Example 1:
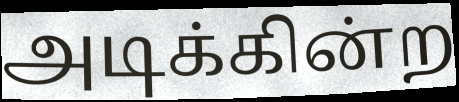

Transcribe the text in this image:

அடிக்கின்ற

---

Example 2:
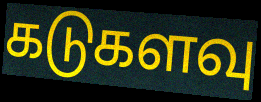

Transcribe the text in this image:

கடுகளவு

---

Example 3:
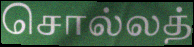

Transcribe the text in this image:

சொல்லத்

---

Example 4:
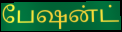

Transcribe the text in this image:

பேஷன்ட்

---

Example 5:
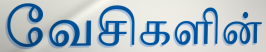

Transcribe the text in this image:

வேசிகளின்